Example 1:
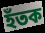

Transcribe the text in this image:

হঁতক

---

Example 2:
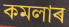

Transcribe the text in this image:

কমলাৰ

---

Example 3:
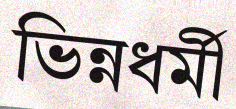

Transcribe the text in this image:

ভিন্নধৰ্মী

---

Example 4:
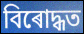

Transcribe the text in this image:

বিৰোদ্ধত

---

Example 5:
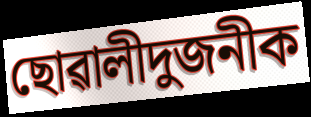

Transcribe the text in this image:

ছোৱালীদুজনীক